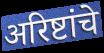
अरिष्टांचे